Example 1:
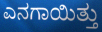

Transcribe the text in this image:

ಎನಗಾಯಿತ್ತು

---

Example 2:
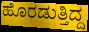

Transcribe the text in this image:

ಹೊರಡುತ್ತಿದ್ದ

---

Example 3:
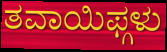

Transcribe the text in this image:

ತವಾಯಿಫ್ಗಳು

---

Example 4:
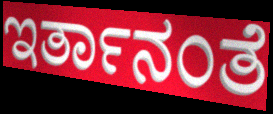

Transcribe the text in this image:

ಇರ್ತಾನಂತೆ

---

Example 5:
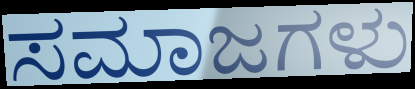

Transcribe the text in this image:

ಸಮಾಜಗಳು